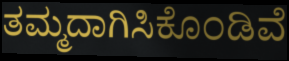
ತಮ್ಮದಾಗಿಸಿಕೊಂಡಿವೆ